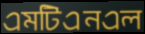
এমটিএনএল